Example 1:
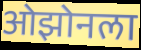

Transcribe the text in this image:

ओझोनला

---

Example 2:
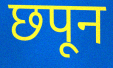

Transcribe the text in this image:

छपून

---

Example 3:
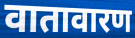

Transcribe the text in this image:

वातावारण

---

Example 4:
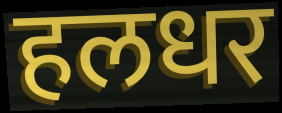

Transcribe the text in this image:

हलधर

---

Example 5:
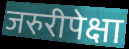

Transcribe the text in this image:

जरुरीपेक्षा